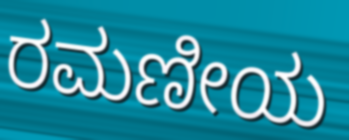
ರಮಣೀಯ